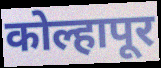
कोल्हापूर